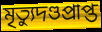
মৃত্যুদণ্ডপ্রাপ্ত